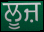
ਲੂਜ਼